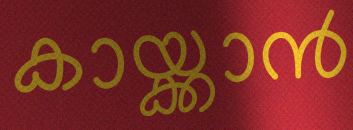
കായ്ക്കാൻ